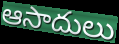
ఆసాదులు